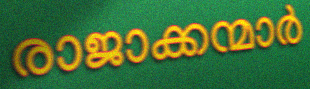
രാജാക്കന്മാർ